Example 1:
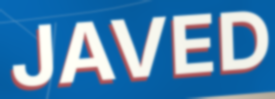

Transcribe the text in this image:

JAVED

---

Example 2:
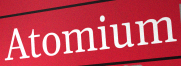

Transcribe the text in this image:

Atomium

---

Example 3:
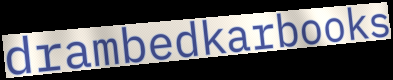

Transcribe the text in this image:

drambedkarbooks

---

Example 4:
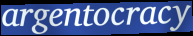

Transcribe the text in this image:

argentocracy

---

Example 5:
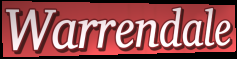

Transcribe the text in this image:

Warrendale